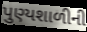
પુણ્યશાળીની